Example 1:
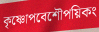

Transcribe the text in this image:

কৃষ্ণোপবেশৌপয়িকং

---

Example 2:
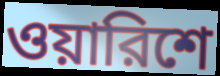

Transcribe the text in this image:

ওয়ারিশে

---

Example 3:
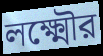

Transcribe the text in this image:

লক্ষ্মৌর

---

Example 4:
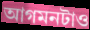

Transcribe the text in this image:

আগমনটাও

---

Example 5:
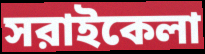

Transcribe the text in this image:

সরাইকেলা